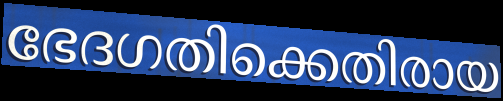
ഭേദഗതിക്കെതിരായ